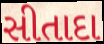
સીતાદા